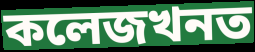
কলেজখনত